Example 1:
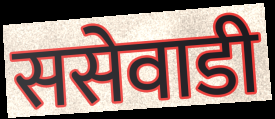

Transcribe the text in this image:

ससेवाडी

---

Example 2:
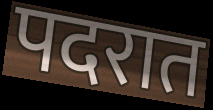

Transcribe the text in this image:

पदरात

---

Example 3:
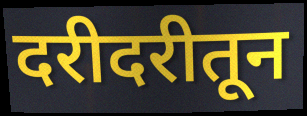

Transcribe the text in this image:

दरीदरीतून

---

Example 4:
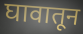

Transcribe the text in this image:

घावातून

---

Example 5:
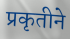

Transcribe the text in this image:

प्रकृतीने